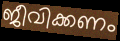
ജീവിക്കണം